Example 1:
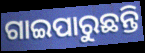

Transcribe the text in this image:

ଗାଇପାରୁଛନ୍ତି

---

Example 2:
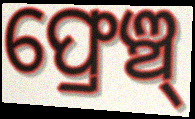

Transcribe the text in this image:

ଫ୍ରେଞ୍ଚ୍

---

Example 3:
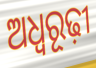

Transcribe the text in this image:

ଅଧ୍ଵରୂଢ଼ୀ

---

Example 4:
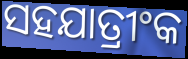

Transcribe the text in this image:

ସହଯାତ୍ରୀଂକ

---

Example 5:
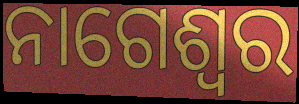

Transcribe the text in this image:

ନାଗେଶ୍ଵର